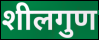
शीलगुण